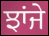
ਝਾਂਜੇ